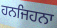
ਹਨਜਿਹਨਾ